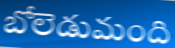
బోలెడుమంది